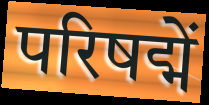
परिषद्में